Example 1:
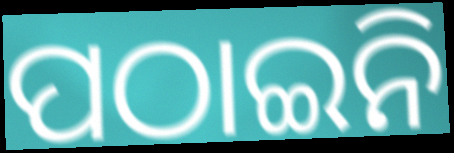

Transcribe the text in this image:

ପଠାଇନି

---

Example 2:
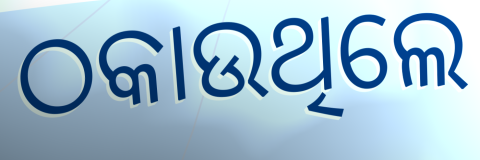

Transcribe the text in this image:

ଠକାଉଥିଲେ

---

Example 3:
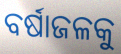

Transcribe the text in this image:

ବର୍ଷାଜଳକୁ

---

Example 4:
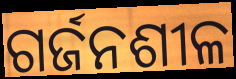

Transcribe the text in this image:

ଗର୍ଜନଶୀଳ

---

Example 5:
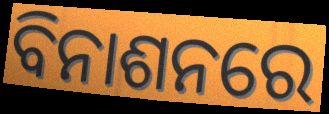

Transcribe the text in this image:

ବିନାଶନରେ